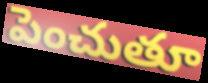
పెంచుతూ